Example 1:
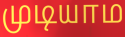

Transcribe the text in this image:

முடியாம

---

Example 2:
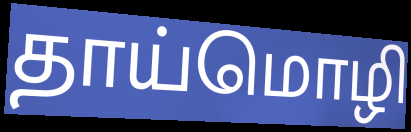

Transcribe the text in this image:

தாய்மொழி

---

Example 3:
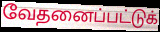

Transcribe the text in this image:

வேதனைப்பட்டுக்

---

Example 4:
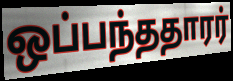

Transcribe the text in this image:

ஒப்பந்ததாரர்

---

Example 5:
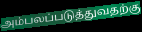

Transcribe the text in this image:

அம்பலப்படுத்துவதற்கு